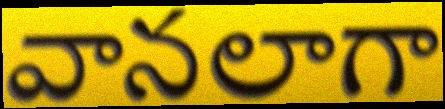
వానలాగా